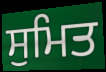
ਸੁਮਿਤ